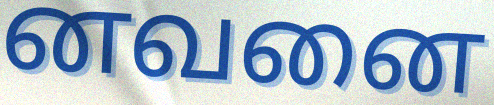
னவனை